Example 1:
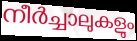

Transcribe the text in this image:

നീർച്ചാലുകളും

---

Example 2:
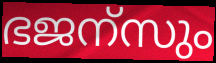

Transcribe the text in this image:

ഭജന്സും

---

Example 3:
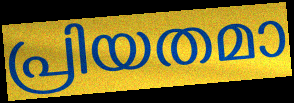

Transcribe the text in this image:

പ്രിയതമാ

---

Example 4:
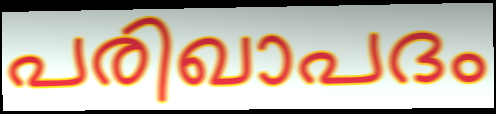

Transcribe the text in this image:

പരിഖാപദം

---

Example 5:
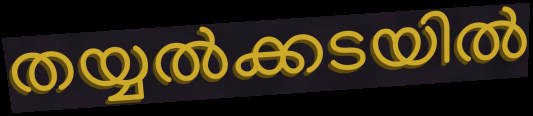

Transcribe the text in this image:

തയ്യൽക്കടയിൽ